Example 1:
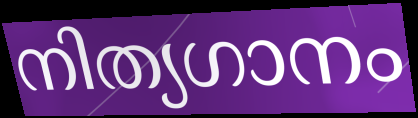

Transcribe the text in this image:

നിത്യഗാനം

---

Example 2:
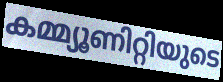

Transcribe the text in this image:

കമ്മ്യൂണിറ്റിയുടെ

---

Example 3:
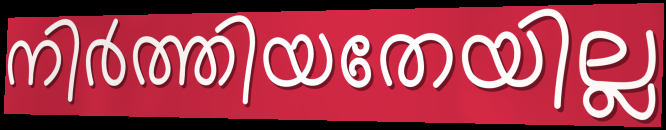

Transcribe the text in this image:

നിർത്തിയതേയില്ല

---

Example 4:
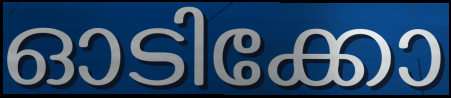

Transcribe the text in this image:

ഓടിക്കോ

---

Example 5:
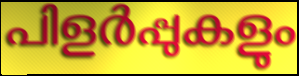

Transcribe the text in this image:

പിളർപ്പുകളും